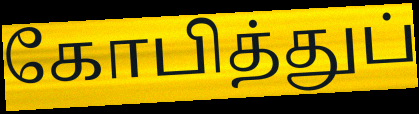
கோபித்துப்